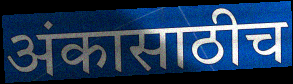
अंकासाठीच